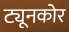
ट्यूनकोर